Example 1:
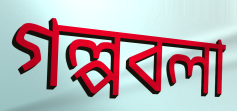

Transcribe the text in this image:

গল্পবলা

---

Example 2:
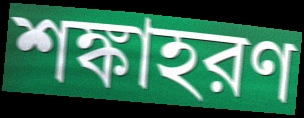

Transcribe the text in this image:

শঙ্কাহরণ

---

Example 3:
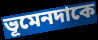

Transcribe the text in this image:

ভূমেনদাকে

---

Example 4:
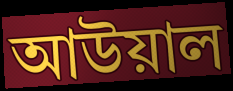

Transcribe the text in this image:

আউয়াল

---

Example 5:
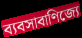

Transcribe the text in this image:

ব্যবসাবাণিজ্যে